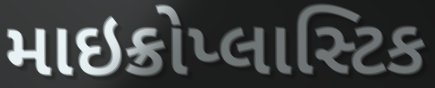
માઇક્રોપ્લાસ્ટિક